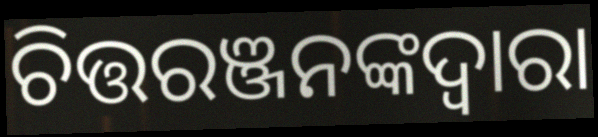
ଚିତ୍ତରଞ୍ଜନଙ୍କଦ୍ଵାରା